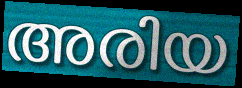
അരിയ